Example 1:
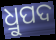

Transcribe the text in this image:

ଧ୍ରୁପଦ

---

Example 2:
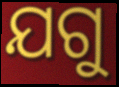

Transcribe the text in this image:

ଯଗୁ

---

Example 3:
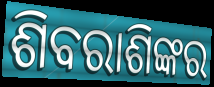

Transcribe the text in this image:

ଶିବରାଶିଙ୍କର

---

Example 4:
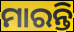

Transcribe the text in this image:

ମାରନ୍ତି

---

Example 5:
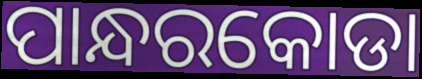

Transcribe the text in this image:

ପାନ୍ଧରକୋଡା